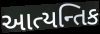
આત્યન્તિક